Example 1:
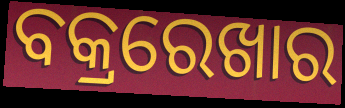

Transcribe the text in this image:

ବକ୍ରରେଖାର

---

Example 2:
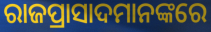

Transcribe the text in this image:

ରାଜପ୍ରାସାଦମାନଙ୍କରେ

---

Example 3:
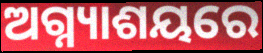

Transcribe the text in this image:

ଅଗ୍ନ୍ୟାଶୟରେ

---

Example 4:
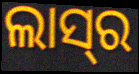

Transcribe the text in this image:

ଲାସ୍‍ର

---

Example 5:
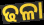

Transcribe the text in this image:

ଢଳା